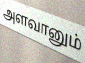
அளவானும்